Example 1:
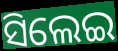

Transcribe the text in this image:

ସିଲେଇ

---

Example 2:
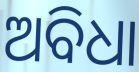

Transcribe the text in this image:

ଅବିଧା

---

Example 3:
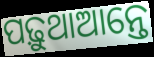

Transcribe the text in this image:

ପଢ଼ୁଥାଆନ୍ତେ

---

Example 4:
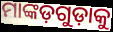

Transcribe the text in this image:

ମାଙ୍କଡ଼ଗୁଡ଼ାକୁ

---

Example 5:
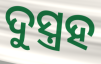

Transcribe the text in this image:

ଦୁସ୍ତ୍ରହ